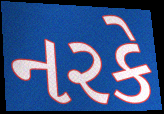
નરકે